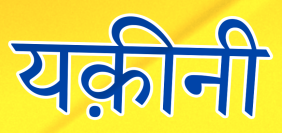
यक़ीनी